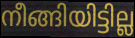
നീങ്ങിയിട്ടില്ല